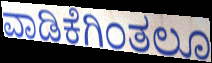
ವಾಡಿಕೆಗಿಂತಲೂ